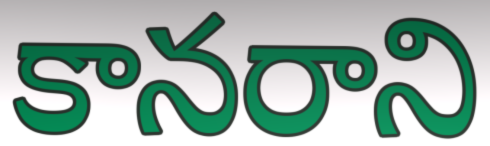
కానరాని